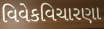
વિવેકવિચારણા